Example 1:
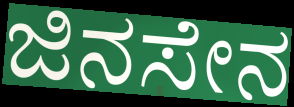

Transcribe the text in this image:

ಜಿನಸೇನ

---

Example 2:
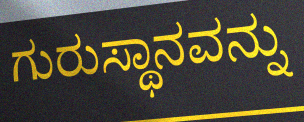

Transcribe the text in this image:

ಗುರುಸ್ಥಾನವನ್ನು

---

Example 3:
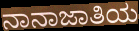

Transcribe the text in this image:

ನಾನಾಜಾತಿಯ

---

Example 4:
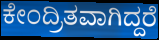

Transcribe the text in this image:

ಕೇಂದ್ರಿತವಾಗಿದ್ದರೆ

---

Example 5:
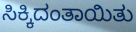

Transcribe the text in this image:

ಸಿಕ್ಕಿದಂತಾಯಿತು